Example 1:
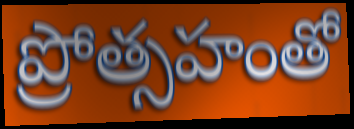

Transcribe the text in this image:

ప్రోత్సహంతో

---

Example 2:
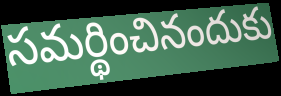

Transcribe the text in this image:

సమర్థించినందుకు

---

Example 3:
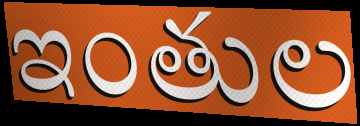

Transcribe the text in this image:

ఇంతుల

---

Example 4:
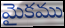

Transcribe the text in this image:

మైకము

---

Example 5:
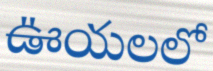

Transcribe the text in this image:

ఊయలలో